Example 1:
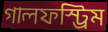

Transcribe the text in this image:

গালফস্ট্রিম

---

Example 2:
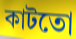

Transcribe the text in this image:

কাটতো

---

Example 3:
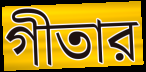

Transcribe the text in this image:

গীতার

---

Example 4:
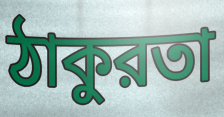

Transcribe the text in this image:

ঠাকুরতা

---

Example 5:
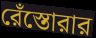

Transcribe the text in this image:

রেঁস্তোরার